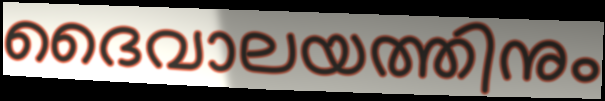
ദൈവാലയത്തിനും